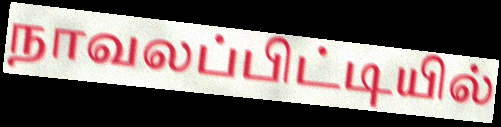
நாவலப்பிட்டியில்